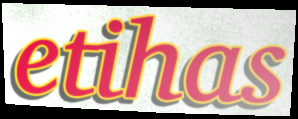
etihas